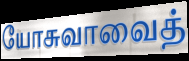
யோசுவாவைத்